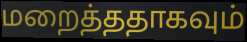
மறைத்ததாகவும்